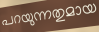
പറയുന്നതുമായ